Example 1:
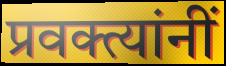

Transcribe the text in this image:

प्रवक्त्यांनीं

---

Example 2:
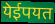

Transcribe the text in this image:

येईपयत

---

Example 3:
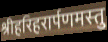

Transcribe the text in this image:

श्रीहरिहरार्पणमस्तु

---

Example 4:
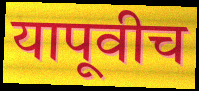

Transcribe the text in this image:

यापूवीच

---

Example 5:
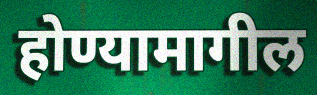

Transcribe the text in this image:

होण्यामागील